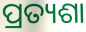
ପ୍ରତ୍ୟଶା